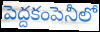
పెద్దకంపెనీలో